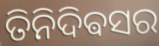
ତିନିଦିଵସର